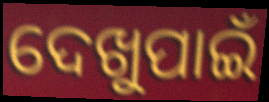
ଦେଖୁପାଇଁ